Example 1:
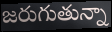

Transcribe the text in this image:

జరుగుతున్నా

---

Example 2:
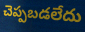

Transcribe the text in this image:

చెప్పబడలేదు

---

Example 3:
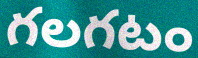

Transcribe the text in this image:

గలగటం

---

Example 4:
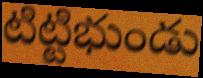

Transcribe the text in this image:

టిట్టిభుండు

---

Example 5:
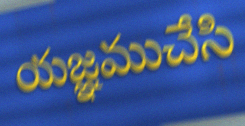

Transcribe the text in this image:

యజ్ఞముచేసి